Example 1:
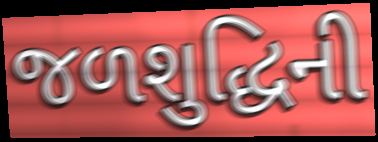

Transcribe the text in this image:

જળશુદ્ધિની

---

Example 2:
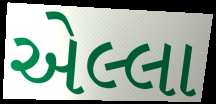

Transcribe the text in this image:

એલ્લા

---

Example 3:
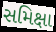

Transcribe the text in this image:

સમિક્ષા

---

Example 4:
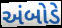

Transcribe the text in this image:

અંબોડે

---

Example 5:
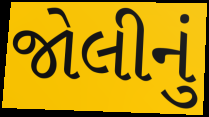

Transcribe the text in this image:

જોલીનું